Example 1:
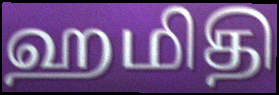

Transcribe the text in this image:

ஹமிதி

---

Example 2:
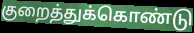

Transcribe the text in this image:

குறைத்துக்கொண்டு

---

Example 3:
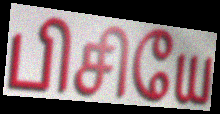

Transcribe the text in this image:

பிசியே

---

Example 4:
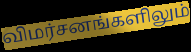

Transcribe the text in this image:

விமர்சனங்களிலும்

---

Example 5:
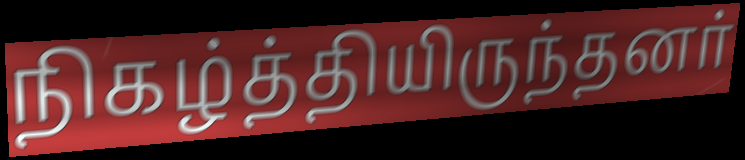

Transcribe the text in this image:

நிகழ்த்தியிருந்தனர்